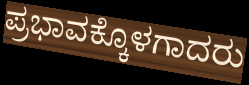
ಪ್ರಭಾವಕ್ಕೊಳಗಾದರು